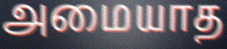
அமையாத